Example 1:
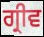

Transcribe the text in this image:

ਗ੍ਰੀਵ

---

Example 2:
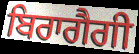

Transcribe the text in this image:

ਬਿਰਾਗੈਗੀ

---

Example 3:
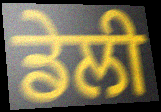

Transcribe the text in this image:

ਡੇਲੀ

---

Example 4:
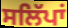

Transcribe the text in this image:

ਸਲਿੱਪਾਂ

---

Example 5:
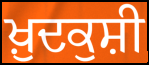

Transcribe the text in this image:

ਖ਼ੁਦਕੁਸ਼ੀ